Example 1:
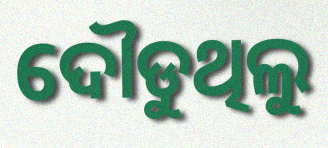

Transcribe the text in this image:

ଦୌଡୁଥିଲୁ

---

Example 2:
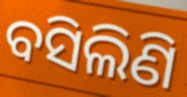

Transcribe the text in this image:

ବସିଲିଣି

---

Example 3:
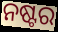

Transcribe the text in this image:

ନଷ୍ଟର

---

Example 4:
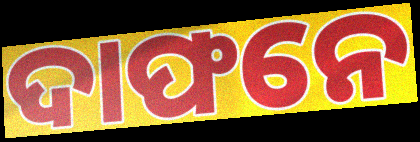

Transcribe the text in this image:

ଦାଫନେ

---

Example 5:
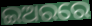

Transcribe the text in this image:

ଇଅରରେ